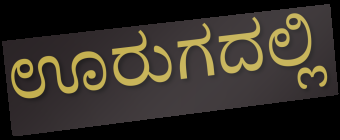
ಊರುಗದಲ್ಲಿ